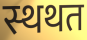
स्थथत